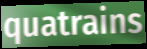
quatrains